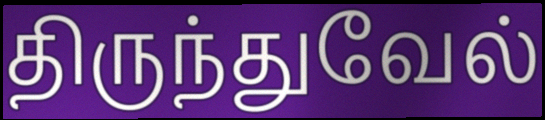
திருந்துவேல்